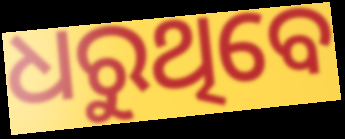
ଧରୁଥିବେ